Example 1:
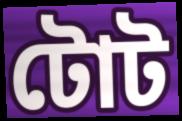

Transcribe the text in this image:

টোট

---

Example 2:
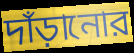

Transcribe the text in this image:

দাঁড়ানোর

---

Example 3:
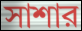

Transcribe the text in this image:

সাশার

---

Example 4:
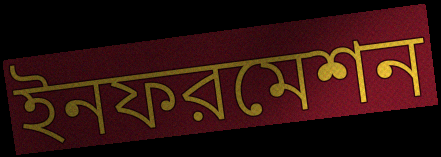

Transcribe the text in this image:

ইনফরমেশন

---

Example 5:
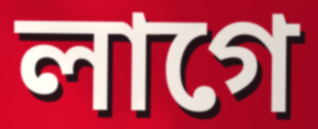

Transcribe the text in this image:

লাগে